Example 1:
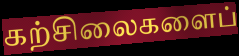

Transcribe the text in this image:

கற்சிலைகளைப்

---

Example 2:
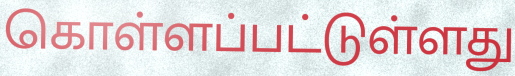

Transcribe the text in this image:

கொள்ளப்பட்டுள்ளது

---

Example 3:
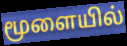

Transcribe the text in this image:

மூளையில்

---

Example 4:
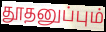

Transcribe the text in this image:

தூதனுப்பும்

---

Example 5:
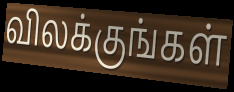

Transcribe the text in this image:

விலக்குங்கள்